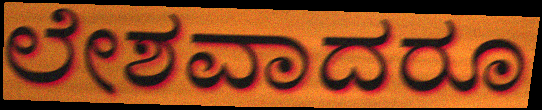
ಲೇಶವಾದರೂ